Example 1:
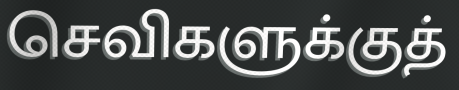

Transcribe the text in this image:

செவிகளுக்குத்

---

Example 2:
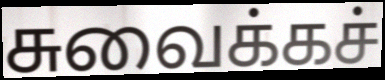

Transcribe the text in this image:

சுவைக்கச்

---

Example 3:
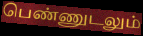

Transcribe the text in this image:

பெண்ணுடலும்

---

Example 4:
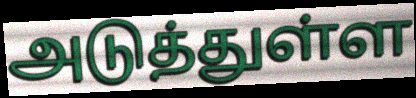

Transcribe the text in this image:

அடுத்துள்ள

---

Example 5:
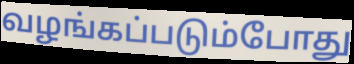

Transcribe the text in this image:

வழங்கப்படும்போது